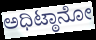
ಅಧಿಟ್ಠಾನೋ